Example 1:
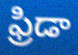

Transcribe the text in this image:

ఫ్రిడా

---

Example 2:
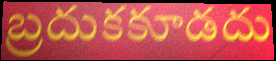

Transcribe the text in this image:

బ్రదుకకూడదు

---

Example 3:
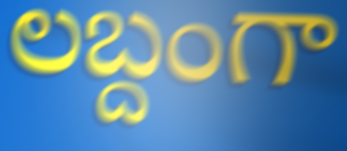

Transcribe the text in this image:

లబ్దంగా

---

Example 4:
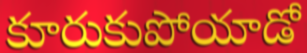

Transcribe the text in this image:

కూరుకుపోయాడో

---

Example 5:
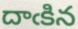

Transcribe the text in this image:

దాఁకిన